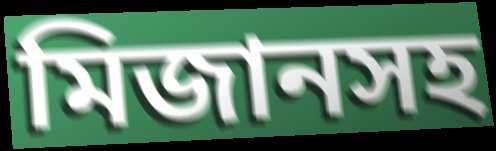
মিজানসহ